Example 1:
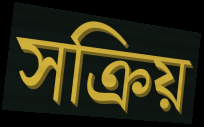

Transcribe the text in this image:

সক্ৰিয়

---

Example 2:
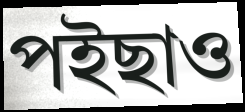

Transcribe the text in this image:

পইছাও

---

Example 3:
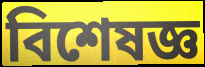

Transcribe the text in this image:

বিশেষজ্ঞ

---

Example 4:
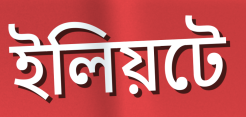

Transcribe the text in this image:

ইলিয়টে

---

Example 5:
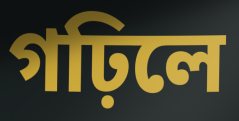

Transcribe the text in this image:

গঢ়িলে